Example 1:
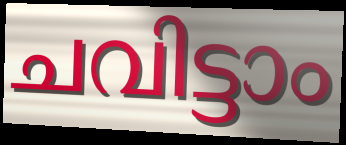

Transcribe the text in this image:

ചവിട്ടാം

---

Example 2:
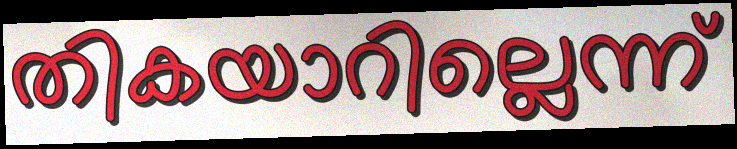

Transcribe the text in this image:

തികയാറില്ലെന്ന്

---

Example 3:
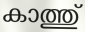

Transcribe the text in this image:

കാത്തു്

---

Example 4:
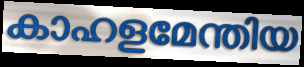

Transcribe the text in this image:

കാഹളമേന്തിയ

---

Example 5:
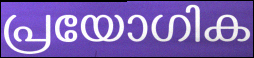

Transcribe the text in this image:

പ്രയോഗിക